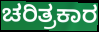
ಚರಿತ್ರಕಾರ